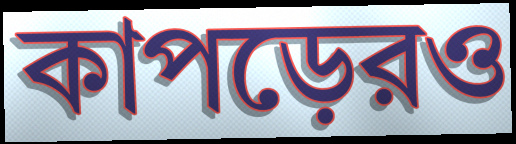
কাপড়েরও